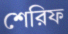
শেরিফ